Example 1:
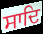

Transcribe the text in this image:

ਸਾਦਿ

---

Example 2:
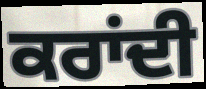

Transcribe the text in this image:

ਕਰਾਂਦੀ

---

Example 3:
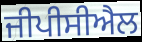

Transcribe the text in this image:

ਜੀਪੀਸੀਐਲ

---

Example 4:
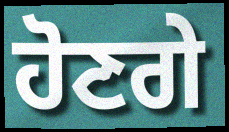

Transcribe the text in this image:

ਹੋਣਗੇ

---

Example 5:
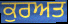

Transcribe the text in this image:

ਕੁਰਅਤ